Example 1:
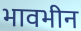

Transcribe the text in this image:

भावभीन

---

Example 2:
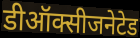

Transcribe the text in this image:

डीऑक्सीजनेटेड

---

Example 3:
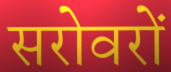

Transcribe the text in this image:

सरोवरों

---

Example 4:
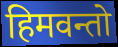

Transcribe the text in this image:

हिमवन्तो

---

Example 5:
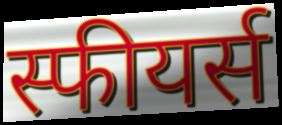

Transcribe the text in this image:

स्फीयर्स